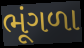
ભૂંગળા